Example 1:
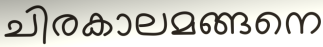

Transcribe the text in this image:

ചിരകാലമങ്ങനെ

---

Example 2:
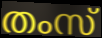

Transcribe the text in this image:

തംസ്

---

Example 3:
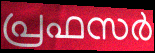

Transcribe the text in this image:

പ്രഫസർ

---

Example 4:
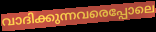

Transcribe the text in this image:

വാദിക്കുന്നവരെപ്പോലെ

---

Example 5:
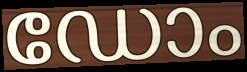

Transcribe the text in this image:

ഡോം